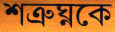
শত্রুঘ্নকে